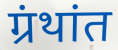
ग्रंथांत